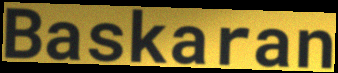
Baskaran